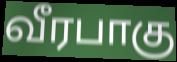
வீரபாகு